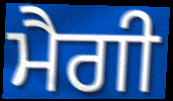
ਮੈਗੀ